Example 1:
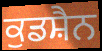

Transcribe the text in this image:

ਕੁਡਸ਼ੈਨ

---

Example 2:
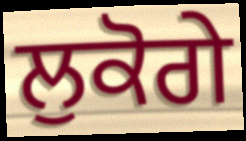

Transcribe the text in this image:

ਲੁਕੋਗੇ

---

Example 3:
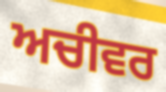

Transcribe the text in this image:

ਅਚੀਵਰ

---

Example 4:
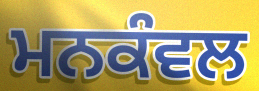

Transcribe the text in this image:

ਮਨਕੰਵਲ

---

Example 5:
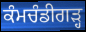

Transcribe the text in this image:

ਕੰਮਚੰਡੀਗੜ੍ਹ